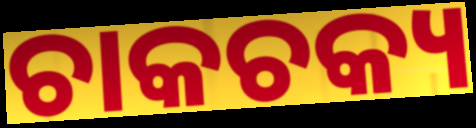
ଚାକଚକ୍ୟ